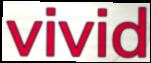
vivid